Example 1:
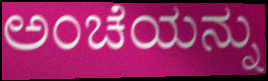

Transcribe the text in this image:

ಅಂಚೆಯನ್ನು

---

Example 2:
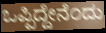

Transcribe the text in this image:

ಒಪ್ಪಿದ್ದೇನೆಂದು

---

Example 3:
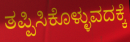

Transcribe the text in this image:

ತಪ್ಪಿಸಿಕೊಳ್ಳುವದಕ್ಕೆ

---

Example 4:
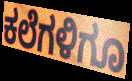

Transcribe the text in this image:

ಕಲೆಗಳಿಗೂ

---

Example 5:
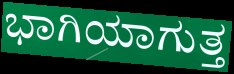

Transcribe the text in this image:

ಭಾಗಿಯಾಗುತ್ತ